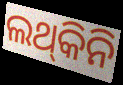
ଲଥ୍‌କିନି